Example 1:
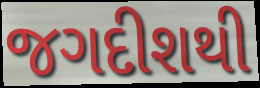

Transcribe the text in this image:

જગદીશથી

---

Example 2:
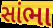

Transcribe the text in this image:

સાંભા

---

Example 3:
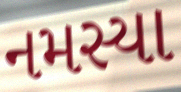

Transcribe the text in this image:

નમસ્યા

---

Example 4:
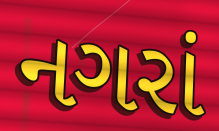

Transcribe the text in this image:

નગરાં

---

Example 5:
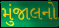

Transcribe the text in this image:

મુંજાલનો